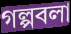
গল্পবলা